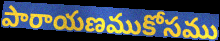
పారాయణముకోసము